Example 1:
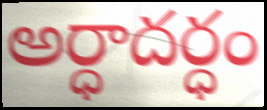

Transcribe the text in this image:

అర్ధాదర్ధం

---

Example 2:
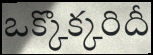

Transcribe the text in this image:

ఒక్కొక్కరిదీ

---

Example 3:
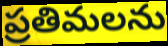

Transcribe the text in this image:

ప్రతిమలను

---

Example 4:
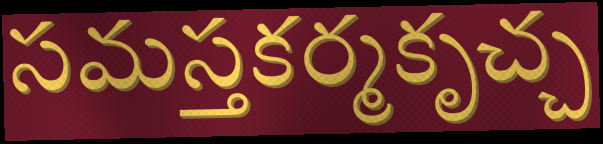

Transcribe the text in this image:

సమస్తకర్మకృచ్చ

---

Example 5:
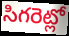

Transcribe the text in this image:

సిగరెట్లో